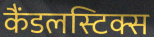
कैंडलस्टिक्स